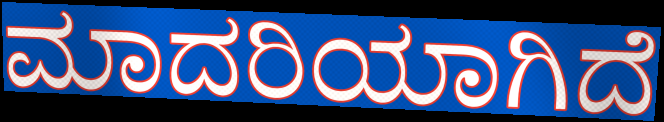
ಮಾದರಿಯಾಗಿದೆ